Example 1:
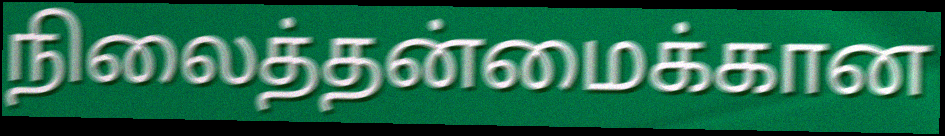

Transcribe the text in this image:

நிலைத்தன்மைக்கான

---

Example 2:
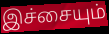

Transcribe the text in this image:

இச்சையும்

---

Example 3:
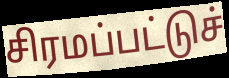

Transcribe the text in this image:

சிரமப்பட்டுச்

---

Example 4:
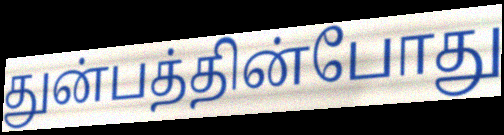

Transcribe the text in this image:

துன்பத்தின்போது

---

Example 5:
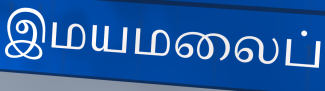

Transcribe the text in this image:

இமயமலைப்